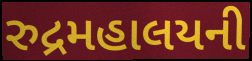
રુદ્રમહાલયની